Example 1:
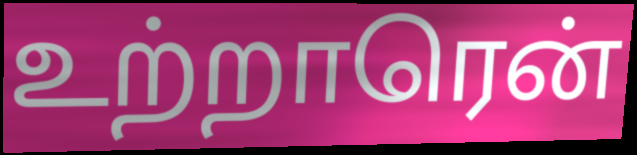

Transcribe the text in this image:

உற்றாரென்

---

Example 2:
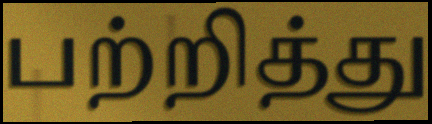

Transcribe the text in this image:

பற்றித்து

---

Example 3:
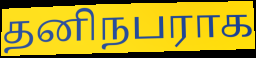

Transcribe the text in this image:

தனிநபராக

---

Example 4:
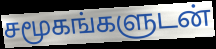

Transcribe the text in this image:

சமூகங்களுடன்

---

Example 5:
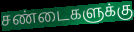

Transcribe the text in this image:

சண்டைகளுக்கு